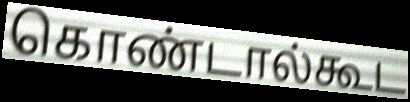
கொண்டால்கூட